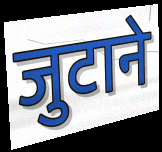
जुटाने